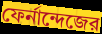
ফের্নান্দেজের